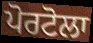
ਪੋਰਟੋਲਾ